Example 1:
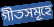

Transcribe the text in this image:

গীতসমূহে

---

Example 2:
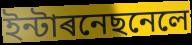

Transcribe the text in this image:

ইন্টাৰনেছনেলে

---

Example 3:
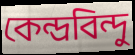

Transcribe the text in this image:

কেন্দ্ৰবিন্দু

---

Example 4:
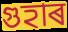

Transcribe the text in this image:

গুহাৰ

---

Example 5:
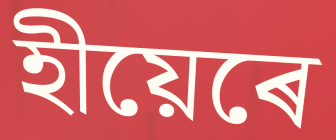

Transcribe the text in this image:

হীয়েৰে